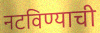
नटविण्याची